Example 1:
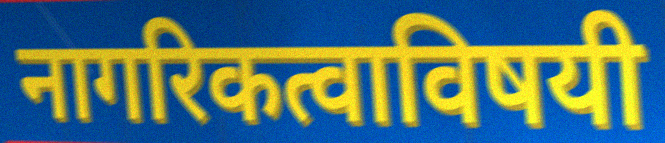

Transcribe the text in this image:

नागरिकत्वाविषयी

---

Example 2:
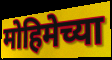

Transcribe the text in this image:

मोहिमेच्या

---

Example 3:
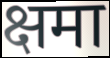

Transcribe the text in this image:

क्षमा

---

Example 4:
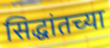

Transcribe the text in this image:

सिद्धांतच्या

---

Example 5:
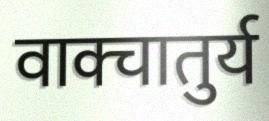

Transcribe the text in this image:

वाक्चातुर्य